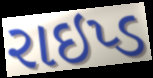
રાઇપ્ડ